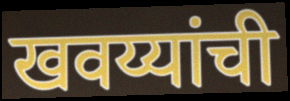
खवय्यांची